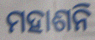
ମହାଶନି